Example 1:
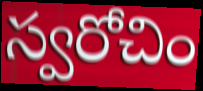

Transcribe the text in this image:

స్వరోచిం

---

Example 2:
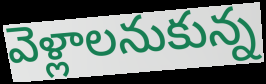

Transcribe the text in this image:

వెళ్లాలనుకున్న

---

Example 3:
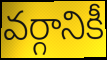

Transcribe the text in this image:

వర్గానికీ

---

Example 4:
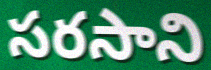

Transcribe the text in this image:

సరసాని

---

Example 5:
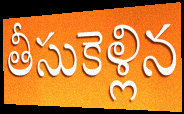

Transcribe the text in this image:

తీసుకెళ్లిన